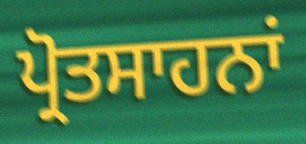
ਪ੍ਰੋਤਸਾਹਨਾਂ